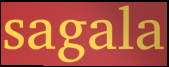
sagala